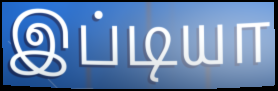
இப்டியா